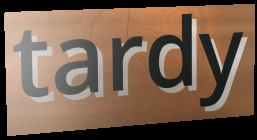
tardy